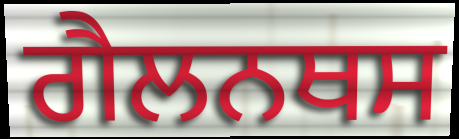
ਗੈਲਨਥਸ